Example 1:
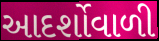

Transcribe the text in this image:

આદર્શોવાળી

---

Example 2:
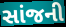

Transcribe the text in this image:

સાંજની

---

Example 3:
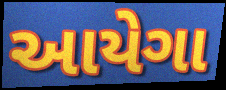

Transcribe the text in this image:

આયેગા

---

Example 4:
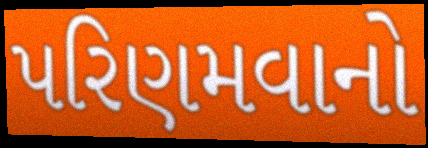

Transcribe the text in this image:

પરિણમવાનો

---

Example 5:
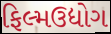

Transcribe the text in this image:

ફિલ્મઉદ્યોગ